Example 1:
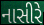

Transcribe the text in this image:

નાસીરે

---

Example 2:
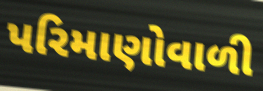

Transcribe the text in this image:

પરિમાણોવાળી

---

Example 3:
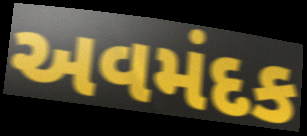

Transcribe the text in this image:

અવમંદક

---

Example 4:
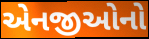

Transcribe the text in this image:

એનજીઓનો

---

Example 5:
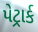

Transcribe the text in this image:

પેટ્રાર્ક